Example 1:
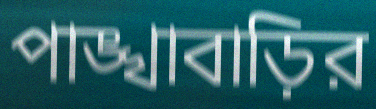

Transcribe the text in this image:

পাঙ্খাবাড়ির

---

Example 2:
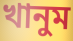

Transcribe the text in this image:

খানুম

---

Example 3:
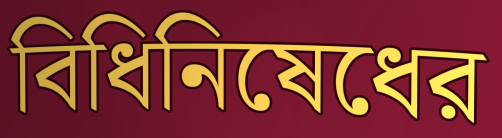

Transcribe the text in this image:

বিধিনিষেধের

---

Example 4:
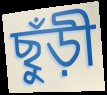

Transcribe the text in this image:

ছুঁড়ী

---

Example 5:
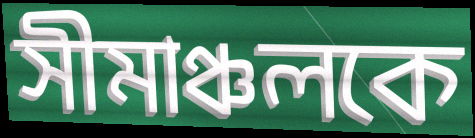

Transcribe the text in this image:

সীমাঞ্চলকে